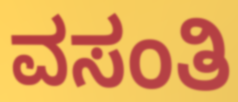
ವಸಂತಿ